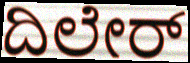
ದಿಲೇರ್